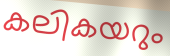
കലികയറും